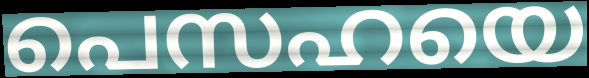
പെസഹയെ